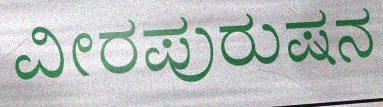
ವೀರಪುರುಷನ